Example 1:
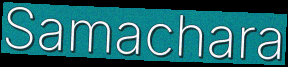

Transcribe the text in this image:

Samachara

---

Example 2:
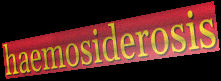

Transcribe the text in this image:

haemosiderosis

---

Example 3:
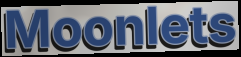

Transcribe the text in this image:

Moonlets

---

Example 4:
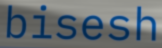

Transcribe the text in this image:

bisesh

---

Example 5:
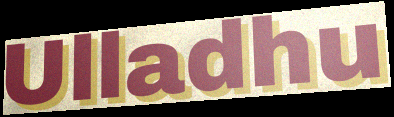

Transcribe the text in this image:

Ulladhu